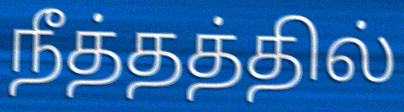
நீத்தத்தில்